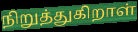
நிறுத்துகிறாள்